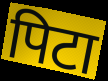
पिटा